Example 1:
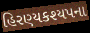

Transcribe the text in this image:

હિરણ્યકશ્યપના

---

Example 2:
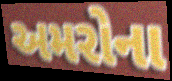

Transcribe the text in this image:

અમરોના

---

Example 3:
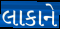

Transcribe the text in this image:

લાકાને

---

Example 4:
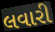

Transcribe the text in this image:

લવારી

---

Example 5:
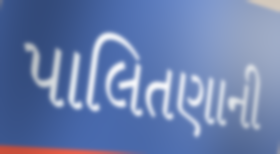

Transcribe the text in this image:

પાલિતણાની